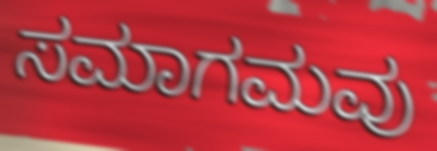
ಸಮಾಗಮವು